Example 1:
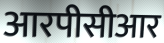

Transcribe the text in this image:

आरपीसीआर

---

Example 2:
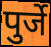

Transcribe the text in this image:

पुर्जे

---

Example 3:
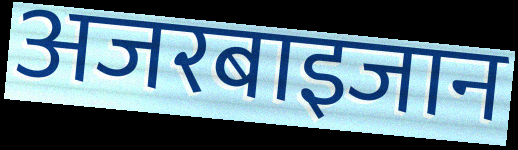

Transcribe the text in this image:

अजरबाइजान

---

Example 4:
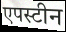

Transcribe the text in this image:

एपस्टीन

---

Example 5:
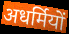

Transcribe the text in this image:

अधर्मियों